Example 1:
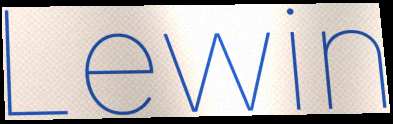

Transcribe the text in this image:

Lewin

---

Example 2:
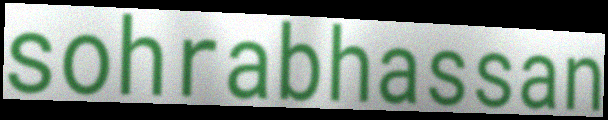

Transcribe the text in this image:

sohrabhassan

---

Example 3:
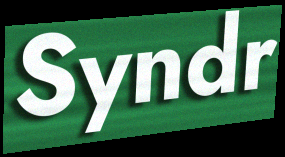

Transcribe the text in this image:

Syndr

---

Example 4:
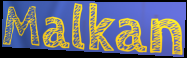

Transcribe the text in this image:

Malkan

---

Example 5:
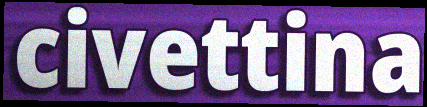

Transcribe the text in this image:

civettina